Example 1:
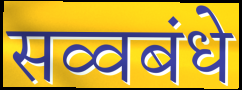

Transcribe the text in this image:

सव्वबंधे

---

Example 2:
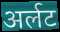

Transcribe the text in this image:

अर्लट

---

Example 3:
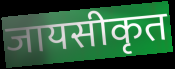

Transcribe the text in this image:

जायसीकृत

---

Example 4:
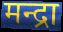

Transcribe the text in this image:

मन्द्रा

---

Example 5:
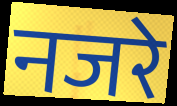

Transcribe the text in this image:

नजरे